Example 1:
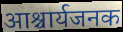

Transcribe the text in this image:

आश्चार्यजनक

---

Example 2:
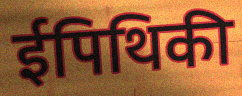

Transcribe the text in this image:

ईपिथिकी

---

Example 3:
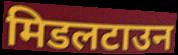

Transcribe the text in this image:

मिडलटाउन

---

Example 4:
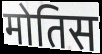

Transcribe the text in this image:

मोतिस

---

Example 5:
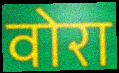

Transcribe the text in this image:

वोरा